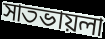
সাতভায়লা